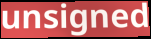
unsigned